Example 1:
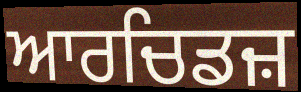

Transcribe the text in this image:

ਆਰਚਿਡਜ਼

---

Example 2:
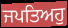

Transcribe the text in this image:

ਜਪਤਿਅਹੁ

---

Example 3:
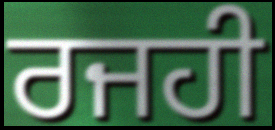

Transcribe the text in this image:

ਰਜਹੀ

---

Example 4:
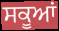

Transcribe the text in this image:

ਸਕੂਆਂ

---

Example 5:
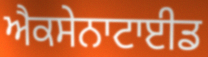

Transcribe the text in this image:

ਐਕਸੇਨਾਟਾਈਡ